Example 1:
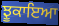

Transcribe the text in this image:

ਝੂਕਾਇਆ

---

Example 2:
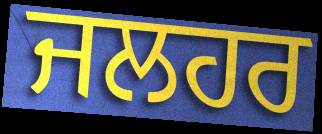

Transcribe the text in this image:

ਜਲਹਰ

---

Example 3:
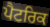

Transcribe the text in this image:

ਪੈਟਰਿਕ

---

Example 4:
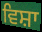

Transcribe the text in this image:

ਵਿਸ਼ਾ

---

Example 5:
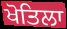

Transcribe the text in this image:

ਖੋਤਿਲਾ